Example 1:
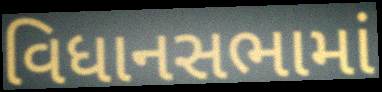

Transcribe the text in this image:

વિધાનસભામાં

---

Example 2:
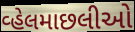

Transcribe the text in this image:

વ્હેલમાછલીઓ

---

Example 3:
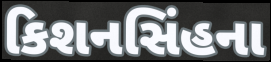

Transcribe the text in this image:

કિશનસિંહના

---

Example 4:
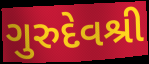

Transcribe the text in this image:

ગુરુદેવશ્રી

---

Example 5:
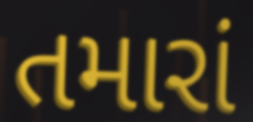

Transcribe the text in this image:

તમારાં